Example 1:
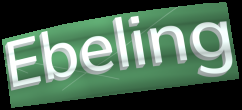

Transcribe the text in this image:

Ebeling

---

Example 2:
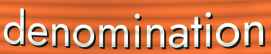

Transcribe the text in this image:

denomination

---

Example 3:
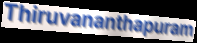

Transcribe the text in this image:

Thiruvananthapuram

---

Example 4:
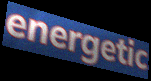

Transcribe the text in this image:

energetic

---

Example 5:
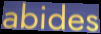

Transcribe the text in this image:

abides